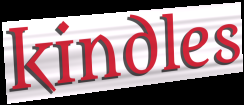
kindles